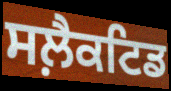
ਸਲ਼ੈਕਟਿਡ